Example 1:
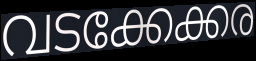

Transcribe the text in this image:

വടക്കേക്കര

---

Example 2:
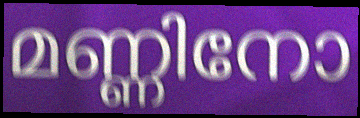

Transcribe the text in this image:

മണ്ണിനോ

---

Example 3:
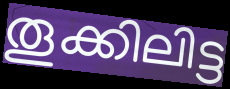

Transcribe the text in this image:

തൂക്കിലിട്ട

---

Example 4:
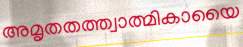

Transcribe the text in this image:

അമൃതതത്ത്വാത്മികായൈ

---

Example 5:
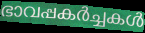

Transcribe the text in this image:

ഭാവപ്പകർച്ചകൾ